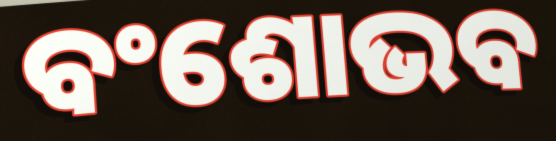
ବଂଶୋଭବ